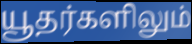
யூதர்களிலும்